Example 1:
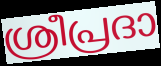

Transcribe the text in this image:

ശ്രീപ്രദാ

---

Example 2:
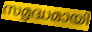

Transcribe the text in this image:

സമൃദ്ധമായി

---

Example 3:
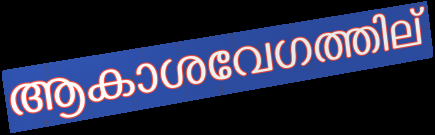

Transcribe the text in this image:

ആകാശവേഗത്തില്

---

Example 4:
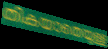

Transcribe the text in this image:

തികയാതെയുള്ള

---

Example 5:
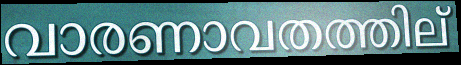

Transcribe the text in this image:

വാരണാവതത്തില്